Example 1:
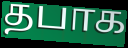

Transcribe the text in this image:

தபாக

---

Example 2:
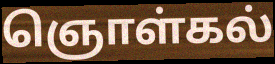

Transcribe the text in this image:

ஞொள்கல்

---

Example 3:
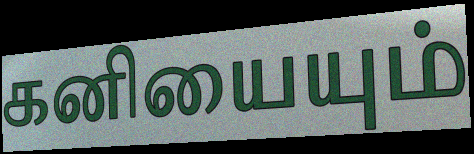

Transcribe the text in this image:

கனியையும்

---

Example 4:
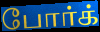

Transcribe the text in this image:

போர்க்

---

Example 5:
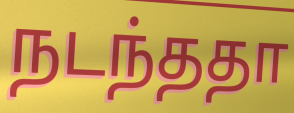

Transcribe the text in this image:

நடந்ததா